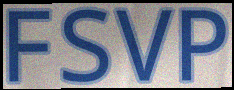
FSVP